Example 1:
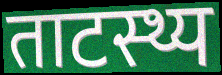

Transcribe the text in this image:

ताटस्थ्य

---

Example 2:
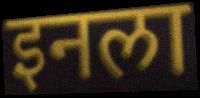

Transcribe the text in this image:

इनला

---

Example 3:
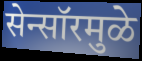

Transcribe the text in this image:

सेन्सॉरमुळे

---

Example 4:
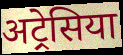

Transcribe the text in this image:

अट्रेसिया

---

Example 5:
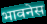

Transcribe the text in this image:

भावनेस